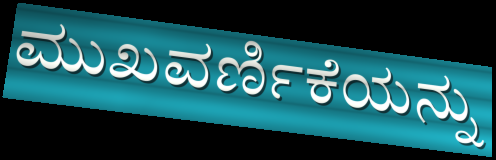
ಮುಖವರ್ಣಿಕೆಯನ್ನು